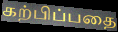
கற்பிப்பதை